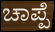
ಚಾಪ್ಪೆ